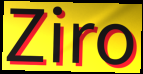
Ziro